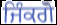
ਜਿੰਕਗੋ